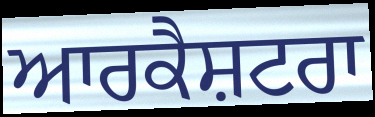
ਆਰਕੈਸ਼ਟਰਾ